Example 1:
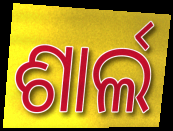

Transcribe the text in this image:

ଶାର୍ଲ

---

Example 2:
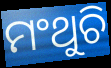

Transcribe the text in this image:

ମଂଥୁଚି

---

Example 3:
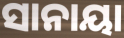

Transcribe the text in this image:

ସାନାୟା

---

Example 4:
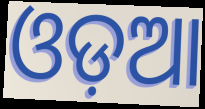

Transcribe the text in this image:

ଓଡ଼ଆ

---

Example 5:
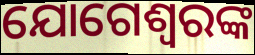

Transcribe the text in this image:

ଯୋଗେଶ୍ୱରଙ୍କ